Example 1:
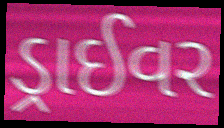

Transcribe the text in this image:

ડ્રાઈવર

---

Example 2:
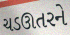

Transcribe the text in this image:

ચડઊતરને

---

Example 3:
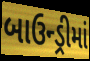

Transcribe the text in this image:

બાઉન્ડ્રીમાં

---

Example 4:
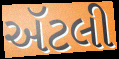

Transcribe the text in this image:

ઍટલી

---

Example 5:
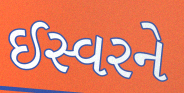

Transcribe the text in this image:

ઈસ્વરને